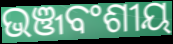
ଭଞ୍ଜବଂଶୀୟ